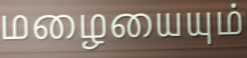
மழையையும்